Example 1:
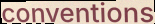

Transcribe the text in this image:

conventions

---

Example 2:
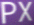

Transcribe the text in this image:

PX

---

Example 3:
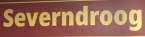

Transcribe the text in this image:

Severndroog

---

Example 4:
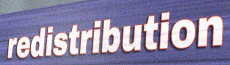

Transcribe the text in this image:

redistribution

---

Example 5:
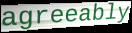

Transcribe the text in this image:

agreeably